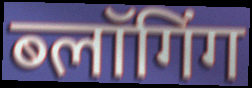
ब्‍लॉगिंग